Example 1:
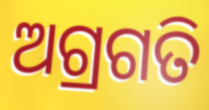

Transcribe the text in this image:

ଅଗ୍ରଗତି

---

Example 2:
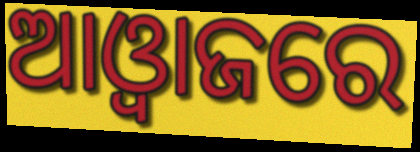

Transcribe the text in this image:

ଆଓ୍ୱାଜରେ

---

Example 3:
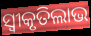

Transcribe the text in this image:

ସ୍ଵୀକୃତିଲାଭ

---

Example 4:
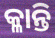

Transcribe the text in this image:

କ୍ଳାନ୍ତି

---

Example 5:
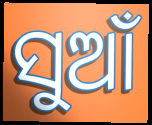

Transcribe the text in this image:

ସୁଆଁ